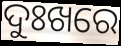
ଦୁଃଖରେ